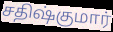
சதிஷ்குமார்